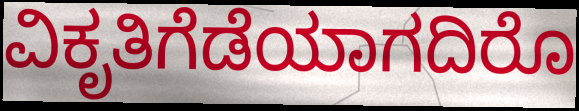
ವಿಕೃತಿಗೆಡೆಯಾಗದಿರೊ